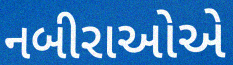
નબીરાઓએ